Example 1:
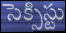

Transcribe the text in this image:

సెక్సిస్టు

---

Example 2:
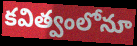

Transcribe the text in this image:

కవిత్వంలోనూ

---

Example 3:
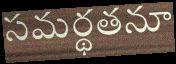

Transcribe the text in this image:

సమర్థతనూ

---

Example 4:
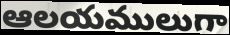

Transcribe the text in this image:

ఆలయములుగా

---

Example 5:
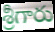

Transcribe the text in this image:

శ్రీగారు